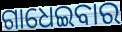
ଗାଧେଇବାର